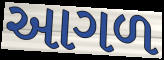
આગળ